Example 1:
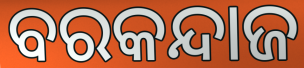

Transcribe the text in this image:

ବରକନ୍ଦାଜ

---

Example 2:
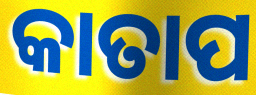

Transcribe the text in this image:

କାତାପ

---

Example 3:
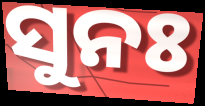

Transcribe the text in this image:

ସୁନଃ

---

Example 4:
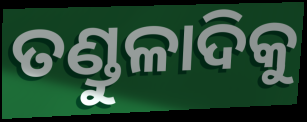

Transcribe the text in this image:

ତଣ୍ଡୁଳାଦିକୁ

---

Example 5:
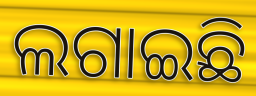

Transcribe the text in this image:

ଲଗାଇଛି